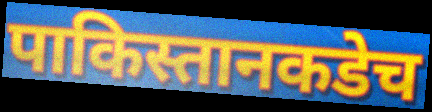
पाकिस्तानकडेच